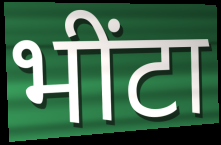
भींटा